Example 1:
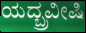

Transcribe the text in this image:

ಯದ್ಬ್ರವೀಷಿ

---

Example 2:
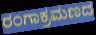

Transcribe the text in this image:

ರಂಗಾಕ್ರಮಣದ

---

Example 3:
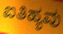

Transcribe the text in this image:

ಐತಿಹ್ಯವು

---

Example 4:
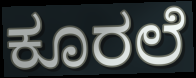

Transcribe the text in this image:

ಕೂರಲೆ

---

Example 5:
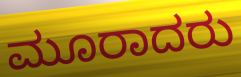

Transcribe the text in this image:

ಮೂರಾದರು